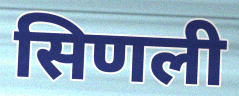
सिणली